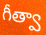
గీత్వా